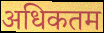
अधिकतम